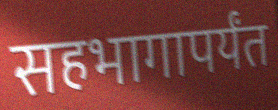
सहभागापर्यंत